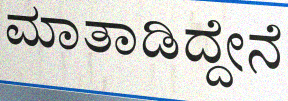
ಮಾತಾಡಿದ್ದೇನೆ